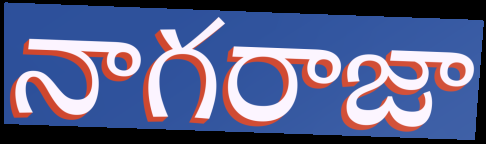
నాగరాజా